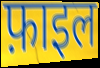
फ़ाइल